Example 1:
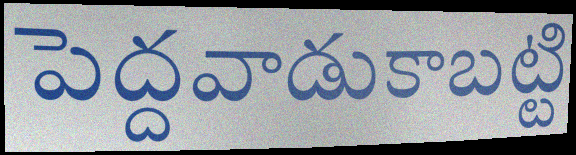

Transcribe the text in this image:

పెద్దవాడుకాబట్టి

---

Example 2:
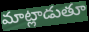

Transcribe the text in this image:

మాట్లాడుతూ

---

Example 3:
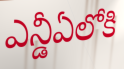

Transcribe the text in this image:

ఎన్డీఏలోకి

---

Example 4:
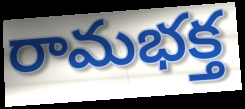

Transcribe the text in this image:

రామభక్త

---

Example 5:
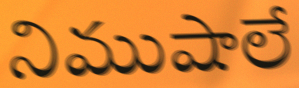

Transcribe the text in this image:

నిముషాలే